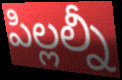
పిల్లల్నీ